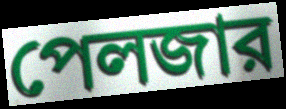
পেলজার